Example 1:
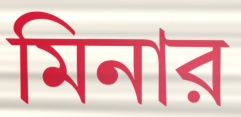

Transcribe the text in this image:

মিনার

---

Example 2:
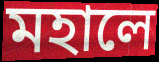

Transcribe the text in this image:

মহালে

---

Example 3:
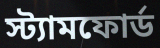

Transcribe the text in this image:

স্ট্যামফোর্ড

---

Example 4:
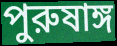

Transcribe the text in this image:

পুরুষাঙ্গ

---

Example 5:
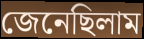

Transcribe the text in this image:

জেনেছিলাম